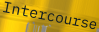
Intercourse